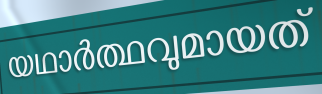
യഥാർത്ഥവുമായത്